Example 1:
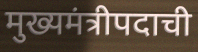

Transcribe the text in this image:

मुख्यमंत्रीपदाची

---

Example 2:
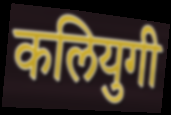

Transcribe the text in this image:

कलियुगी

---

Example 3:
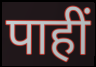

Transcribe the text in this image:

पाहीं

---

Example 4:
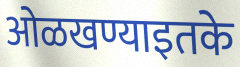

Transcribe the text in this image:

ओळखण्याइतके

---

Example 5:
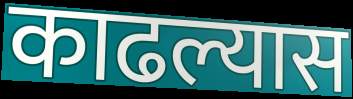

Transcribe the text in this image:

काढल्यास